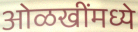
ओळखींमध्ये